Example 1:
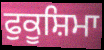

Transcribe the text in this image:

ਫੁਕੂਸ਼ਿਮਾ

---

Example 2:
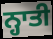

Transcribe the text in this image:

ਨ੍ਹਾਤੀ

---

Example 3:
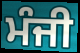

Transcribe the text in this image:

ਮੰਜੀ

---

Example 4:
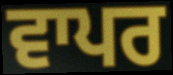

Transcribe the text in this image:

ਵਾਪਰ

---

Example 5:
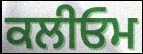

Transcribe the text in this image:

ਕਲੀਓਮ